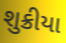
શુક્રીયા